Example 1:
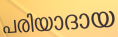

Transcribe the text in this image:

പരിയാദായ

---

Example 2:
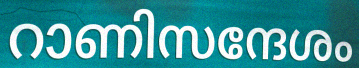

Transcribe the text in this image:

റാണിസന്ദേശം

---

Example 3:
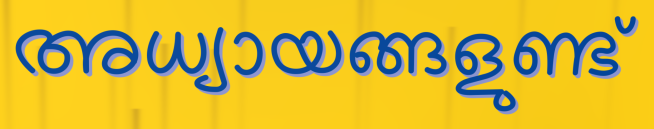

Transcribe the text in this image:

അധ്യായങ്ങളുണ്ട്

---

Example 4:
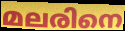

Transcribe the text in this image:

മലരിനെ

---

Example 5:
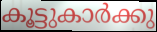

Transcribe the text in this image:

കൂട്ടുകാർക്കു